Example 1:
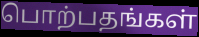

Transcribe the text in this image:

பொற்பதங்கள்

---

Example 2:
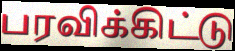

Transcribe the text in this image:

பரவிக்கிட்டு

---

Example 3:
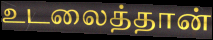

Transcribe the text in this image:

உடலைத்தான்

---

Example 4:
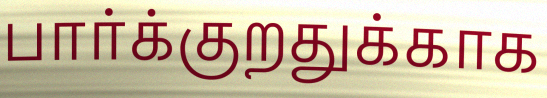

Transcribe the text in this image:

பார்க்குறதுக்காக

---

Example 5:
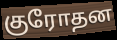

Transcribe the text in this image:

குரோதன